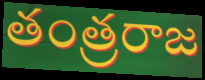
తంత్రరాజ